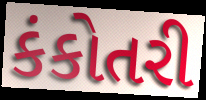
કંકોતરી